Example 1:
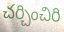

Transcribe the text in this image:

చర్చించిరి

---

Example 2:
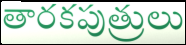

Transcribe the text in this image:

తారకపుత్రులు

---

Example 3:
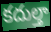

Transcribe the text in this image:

కదుల్తా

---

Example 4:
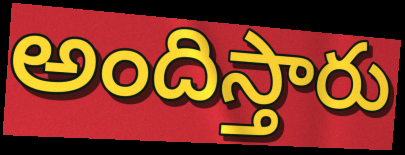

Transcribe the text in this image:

అందిస్తారు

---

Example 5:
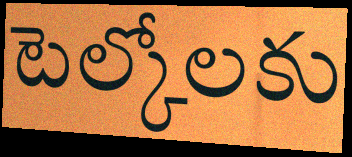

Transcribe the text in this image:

టెల్కోలకు